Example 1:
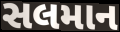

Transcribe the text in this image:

સલમાન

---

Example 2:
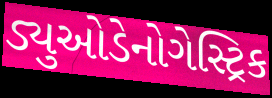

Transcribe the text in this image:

ડ્યુઓડેનોગેસ્ટ્રિક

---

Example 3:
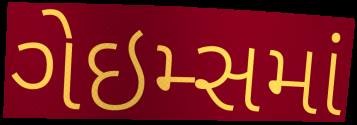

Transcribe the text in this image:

ગેઇમ્સમાં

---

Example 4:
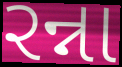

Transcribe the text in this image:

રન્ના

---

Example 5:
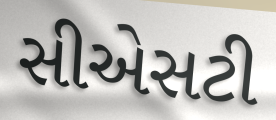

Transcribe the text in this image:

સીએસટી